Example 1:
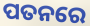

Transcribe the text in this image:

ପତନରେ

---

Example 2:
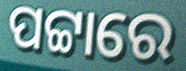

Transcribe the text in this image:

ପଟ୍ଟାରେ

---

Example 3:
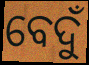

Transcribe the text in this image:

ବେଦୁଁ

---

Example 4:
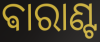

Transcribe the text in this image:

ଵାରାଣ୍ଟ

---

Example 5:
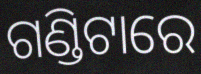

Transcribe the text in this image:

ଗଣ୍ଡିଟାରେ